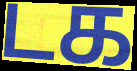
டக